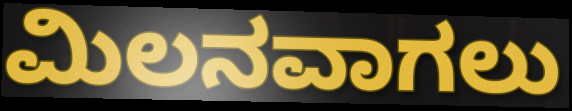
ಮಿಲನವಾಗಲು